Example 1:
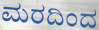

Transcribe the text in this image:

ಮರದಿಂದ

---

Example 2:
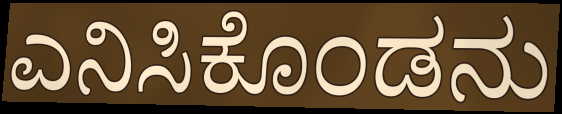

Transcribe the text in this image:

ಎನಿಸಿಕೊಂಡನು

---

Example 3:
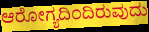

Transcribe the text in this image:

ಆರೋಗ್ಯದಿಂದಿರುವುದು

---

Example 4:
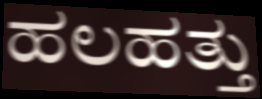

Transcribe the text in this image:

ಹಲಹತ್ತು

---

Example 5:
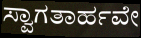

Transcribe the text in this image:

ಸ್ವಾಗತಾರ್ಹವೇ